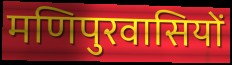
मणिपुरवासियों